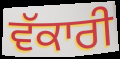
ਵੱਕਾਰੀ